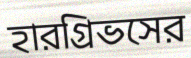
হারগ্রিভসের